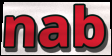
nab